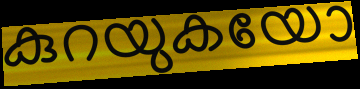
കുറയുകയോ